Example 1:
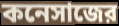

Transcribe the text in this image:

কনেসাজের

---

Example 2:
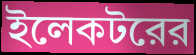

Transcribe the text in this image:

ইলেকটরের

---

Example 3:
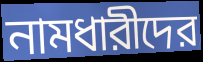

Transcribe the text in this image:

নামধারীদের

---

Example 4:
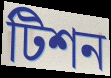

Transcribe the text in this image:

টিশন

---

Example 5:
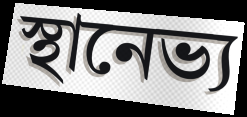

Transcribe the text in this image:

স্থানেভ্য